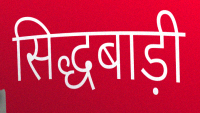
सिद्धबाड़ी